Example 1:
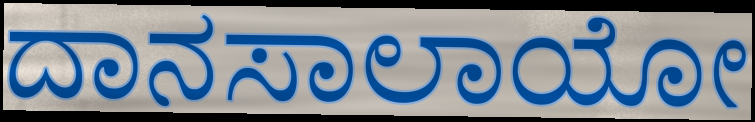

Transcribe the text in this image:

ದಾನಸಾಲಾಯೋ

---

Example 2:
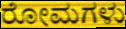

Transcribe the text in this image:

ರೋಮಗಳು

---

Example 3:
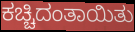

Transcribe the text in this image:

ಕಚ್ಚಿದಂತಾಯಿತು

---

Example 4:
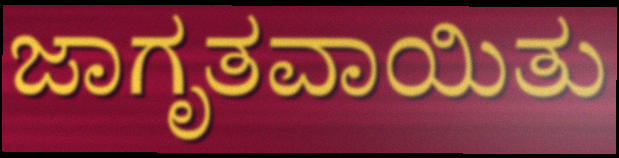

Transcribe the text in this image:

ಜಾಗೃತವಾಯಿತು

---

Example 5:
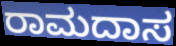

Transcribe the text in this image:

ರಾಮದಾಸ